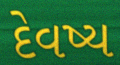
દેવષ્ય